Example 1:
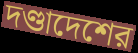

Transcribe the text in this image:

দণ্ডাদেশের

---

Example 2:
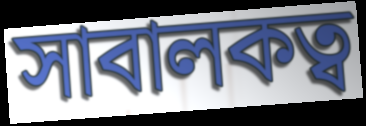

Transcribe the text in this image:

সাবালকত্ব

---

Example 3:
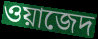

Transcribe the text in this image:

ওয়াজেদ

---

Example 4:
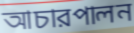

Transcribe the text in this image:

আচারপালন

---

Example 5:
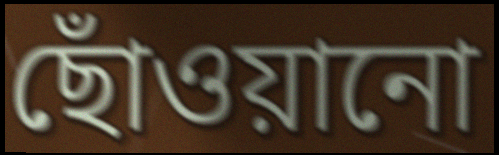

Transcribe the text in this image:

ছোঁওয়ানো